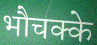
भौचक्के